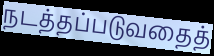
நடத்தப்படுவதைத்